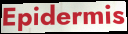
Epidermis